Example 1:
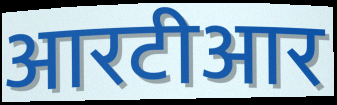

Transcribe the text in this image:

आरटीआर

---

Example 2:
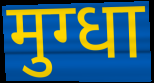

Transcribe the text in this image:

मुग्धा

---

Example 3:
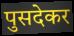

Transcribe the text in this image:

पुसदेकर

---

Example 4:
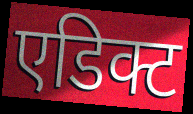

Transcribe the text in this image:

एडिक्ट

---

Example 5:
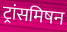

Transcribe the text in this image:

ट्रांसमिषन